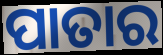
ପାତାର